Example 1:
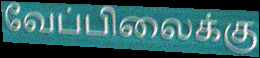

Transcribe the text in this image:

வேப்பிலைக்கு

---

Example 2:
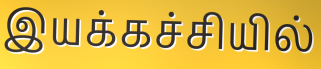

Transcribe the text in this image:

இயக்கச்சியில்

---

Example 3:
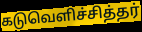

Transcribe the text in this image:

கடுவெளிச்சித்தர்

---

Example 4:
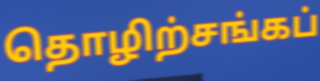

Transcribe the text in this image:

தொழிற்சங்கப்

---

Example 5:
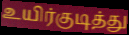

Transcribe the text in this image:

உயிர்குடித்து